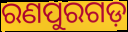
ରଣପୁରଗଡ଼